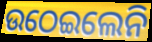
ଉଠେଇଲେନି